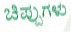
ಚಿಪ್ಪುಗಳು